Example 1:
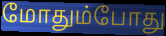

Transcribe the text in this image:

மோதும்போது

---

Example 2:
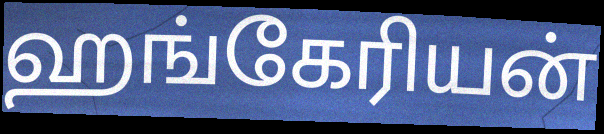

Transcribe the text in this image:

ஹங்கேரியன்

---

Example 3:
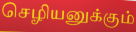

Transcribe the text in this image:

செழியனுக்கும்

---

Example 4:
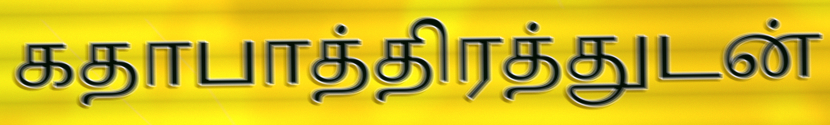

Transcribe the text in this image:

கதாபாத்திரத்துடன்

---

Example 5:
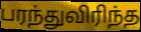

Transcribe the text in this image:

பரந்துவிரிந்த